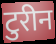
टुरीन